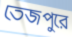
তেজপুরে